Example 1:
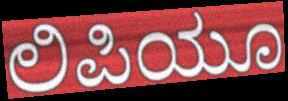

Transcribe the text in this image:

ಲಿಪಿಯೂ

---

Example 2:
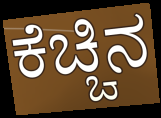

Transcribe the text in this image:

ಕೆಚ್ಚಿನ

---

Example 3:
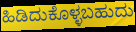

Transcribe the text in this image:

ಹಿಡಿದುಕೊಳ್ಳಬಹುದು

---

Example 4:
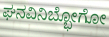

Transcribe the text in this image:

ಘನವಿನಿಬ್ಭೋಗೋ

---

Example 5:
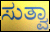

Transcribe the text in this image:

ಸುತ್ವಾ